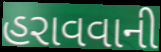
હરાવવાની